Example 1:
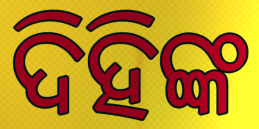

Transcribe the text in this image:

ଦିହିଙ୍କ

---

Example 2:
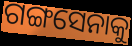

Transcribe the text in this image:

ଗଙ୍ଗସେନାକୁ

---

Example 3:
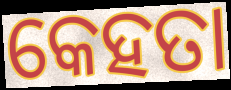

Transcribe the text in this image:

କେହତା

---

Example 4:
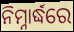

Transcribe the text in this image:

ନିମ୍ନାର୍ଦ୍ଧରେ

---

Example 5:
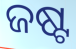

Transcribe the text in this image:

ଜଷ୍ଟ